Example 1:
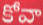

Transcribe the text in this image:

కోవా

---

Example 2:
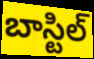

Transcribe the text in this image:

బాస్టిల్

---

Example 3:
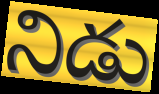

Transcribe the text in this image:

నిడు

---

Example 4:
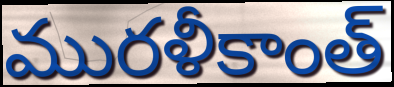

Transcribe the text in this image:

మురళీకాంత్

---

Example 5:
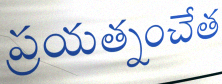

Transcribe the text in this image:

ప్రయత్నంచేత